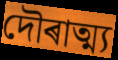
দৌৰাত্ম্য